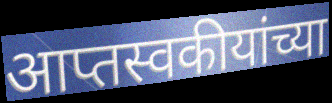
आप्तस्वकीयांच्या